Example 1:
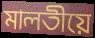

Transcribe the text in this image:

মালতীয়ে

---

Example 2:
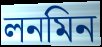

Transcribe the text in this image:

লনমিন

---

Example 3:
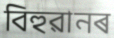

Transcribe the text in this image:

বিহুৱানৰ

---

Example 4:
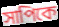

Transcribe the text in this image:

সাপিকে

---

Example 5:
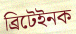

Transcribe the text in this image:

ব্ৰিটেইনক